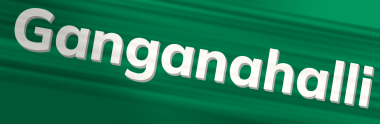
Ganganahalli